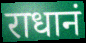
राधानं